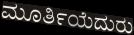
ಮೂರ್ತಿಯೆದುರು